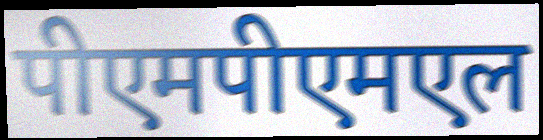
पीएमपीएमएल